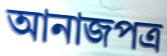
আনাজপত্র